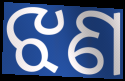
ଝଣ